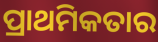
ପ୍ରାଥମିକତାର